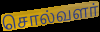
சொல்வளர்